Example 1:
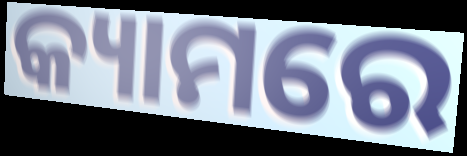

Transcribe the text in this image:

କ୍ୟାମରେ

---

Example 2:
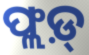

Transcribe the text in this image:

ଫ୍ଲଡ଼୍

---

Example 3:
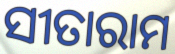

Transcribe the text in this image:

ସୀତାରାମ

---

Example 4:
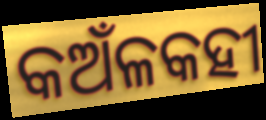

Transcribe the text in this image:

କଅଁଳକହୀ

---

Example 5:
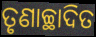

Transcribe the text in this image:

ତୃଣାଚ୍ଛାଦିତ